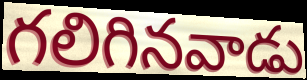
గలిగినవాడు